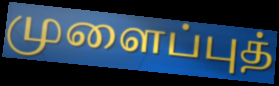
முளைப்புத்